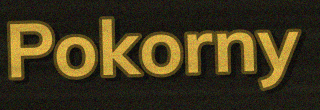
Pokorny